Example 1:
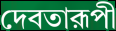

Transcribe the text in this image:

দেবতারূপী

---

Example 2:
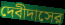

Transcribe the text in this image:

দেবীদাসের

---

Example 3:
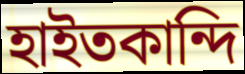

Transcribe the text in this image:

হাইতকান্দি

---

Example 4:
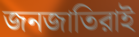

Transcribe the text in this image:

জনজাতিরাই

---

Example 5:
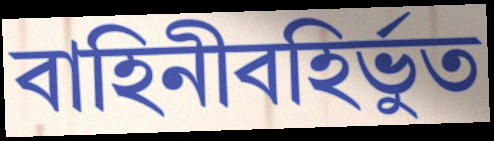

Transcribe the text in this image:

বাহিনীবহির্ভুত